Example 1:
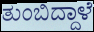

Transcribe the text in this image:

ತುಂಬಿದ್ದಾಳೆ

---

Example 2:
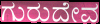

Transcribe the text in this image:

ಗುರುದೇವ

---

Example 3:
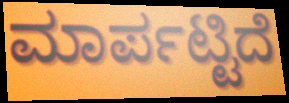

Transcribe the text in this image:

ಮಾರ್ಪಟ್ಟಿದೆ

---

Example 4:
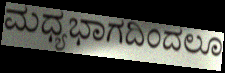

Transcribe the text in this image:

ಮಧ್ಯಭಾಗದಿಂದಲೂ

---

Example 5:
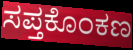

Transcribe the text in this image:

ಸಪ್ತಕೊಂಕಣ